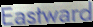
Eastward